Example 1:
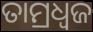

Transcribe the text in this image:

ତାମ୍ରଧ୍ୱଜ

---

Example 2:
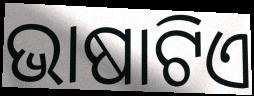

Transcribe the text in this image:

ଭାଷାଟିଏ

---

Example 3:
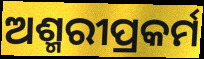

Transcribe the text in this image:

ଅଶ୍ମରୀପ୍ରକର୍ମ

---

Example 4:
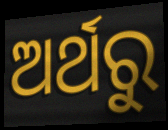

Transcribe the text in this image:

ଅର୍ଥରୁ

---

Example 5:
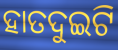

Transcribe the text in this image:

ହାତଦୁଇଟି